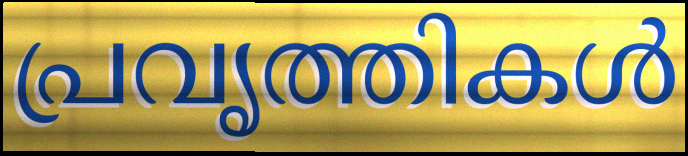
പ്രവൃത്തികൾ